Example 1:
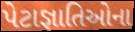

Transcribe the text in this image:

પેટાજ્ઞાતિઓના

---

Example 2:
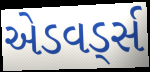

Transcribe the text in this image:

એડવર્ડ્સ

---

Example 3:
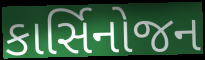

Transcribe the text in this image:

કાર્સિનોજન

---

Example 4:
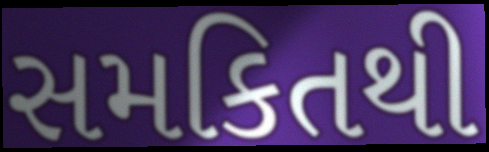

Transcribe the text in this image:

સમકિતથી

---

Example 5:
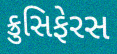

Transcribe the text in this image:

ક્રુસિફેરસ